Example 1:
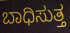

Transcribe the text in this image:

ಬಾಧಿಸುತ್ತ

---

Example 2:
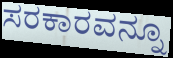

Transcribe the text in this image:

ಸರಕಾರವನ್ನೂ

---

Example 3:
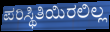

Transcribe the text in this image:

ಪರಿಸ್ಥಿತಿಯಿರಲಿಲ್ಲ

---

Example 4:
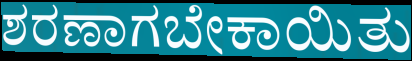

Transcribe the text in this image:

ಶರಣಾಗಬೇಕಾಯಿತು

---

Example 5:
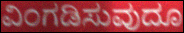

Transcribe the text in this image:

ವಿಂಗಡಿಸುವುದೂ